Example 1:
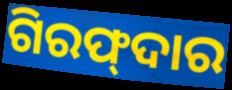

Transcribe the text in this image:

ଗିରଫ୍‍ଦାର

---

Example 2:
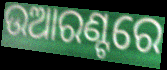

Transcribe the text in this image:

ଉଆରଣ୍ଟରେ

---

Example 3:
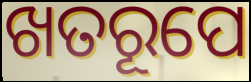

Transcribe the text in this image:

ଖତରୂପେ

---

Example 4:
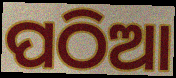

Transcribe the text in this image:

ପଠିଆ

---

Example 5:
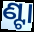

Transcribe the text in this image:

ଣ୍ଟା